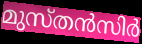
മുസ്തൻസിർ